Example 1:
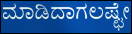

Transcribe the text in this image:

ಮಾಡಿದಾಗಲಷ್ಟೇ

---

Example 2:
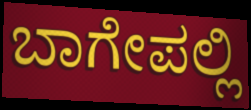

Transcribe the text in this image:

ಬಾಗೇಪಲ್ಲಿ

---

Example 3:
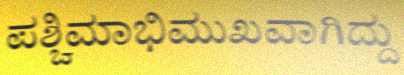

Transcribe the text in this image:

ಪಶ್ಚಿಮಾಭಿಮುಖವಾಗಿದ್ದು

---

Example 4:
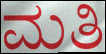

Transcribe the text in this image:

ಮತಿ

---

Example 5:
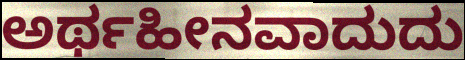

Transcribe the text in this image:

ಅರ್ಥಹೀನವಾದುದು